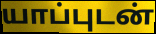
யாப்புடன்